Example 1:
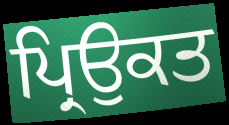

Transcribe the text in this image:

ਪ੍ਰਿਉਕਤ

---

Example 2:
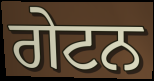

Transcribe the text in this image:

ਗੇਟਨ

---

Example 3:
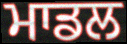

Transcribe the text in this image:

ਮਾਡਲ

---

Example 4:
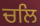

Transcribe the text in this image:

ਚਲਿ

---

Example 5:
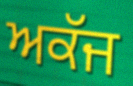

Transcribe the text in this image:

ਅਕੱਜ